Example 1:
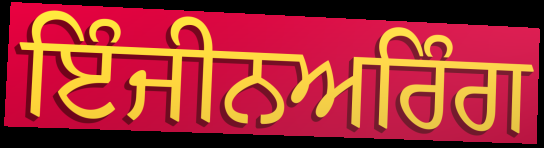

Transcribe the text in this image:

ਇੰਜੀਨਅਰਿੰਗ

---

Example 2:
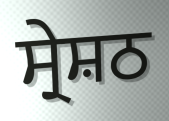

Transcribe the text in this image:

ਸ੍ਰੇਸ਼ਠ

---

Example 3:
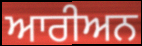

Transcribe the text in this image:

ਆਰੀਅਨ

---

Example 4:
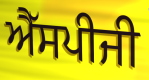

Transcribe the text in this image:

ਐੱਸਪੀਜੀ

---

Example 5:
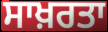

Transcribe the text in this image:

ਸਾਖ਼ਰਤਾ